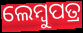
ଲେମ୍ବୁପତ୍ର